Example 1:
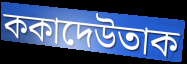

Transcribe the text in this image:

ককাদেউতাক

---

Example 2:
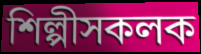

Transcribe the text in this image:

শিল্পীসকলক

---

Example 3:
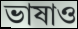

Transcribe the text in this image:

ভাষাও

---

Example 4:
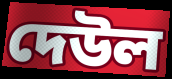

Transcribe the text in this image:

দেউল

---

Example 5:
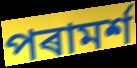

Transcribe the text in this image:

পৰামৰ্শ